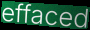
effaced